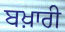
ਬਖ਼ਾਰੀ